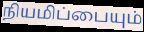
நியமிப்பையும்